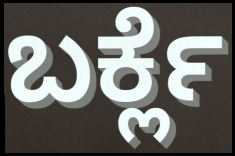
ಬರ್ಕ್ಲೆ